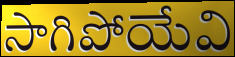
సాగిపోయేవి